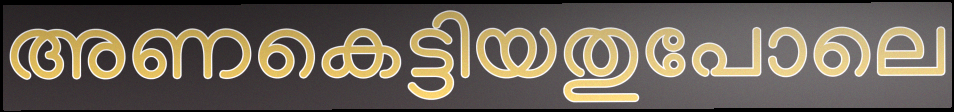
അണകെട്ടിയതുപോലെ